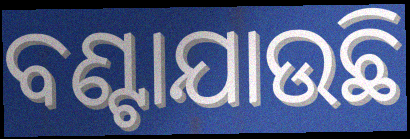
ବଣ୍ଟାଯାଉଛି